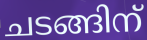
ചടങ്ങിന്